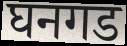
घनगड